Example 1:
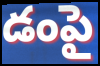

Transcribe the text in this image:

డంపై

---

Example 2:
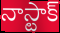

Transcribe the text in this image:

నాస్టాక్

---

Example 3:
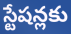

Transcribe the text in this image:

స్టేషన్లకు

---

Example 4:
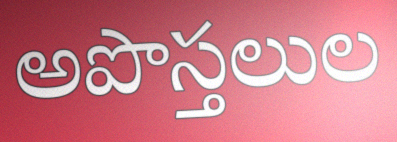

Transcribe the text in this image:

అపొస్తలుల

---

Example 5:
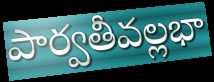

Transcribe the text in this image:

పార్వతీవల్లభా